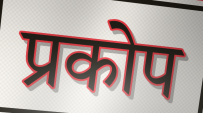
प्रकोप